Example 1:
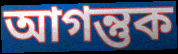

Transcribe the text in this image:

আগন্তুক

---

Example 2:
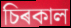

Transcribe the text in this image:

চিৰকাল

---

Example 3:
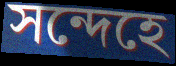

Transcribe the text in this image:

সন্দেহে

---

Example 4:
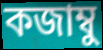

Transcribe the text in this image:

কজাম্বু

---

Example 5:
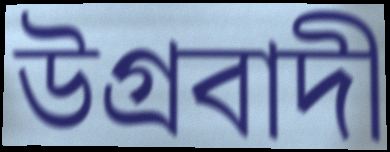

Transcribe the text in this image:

উগ্ৰবাদী